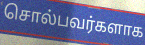
சொல்பவர்களாக